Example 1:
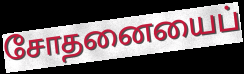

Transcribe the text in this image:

சோதனையைப்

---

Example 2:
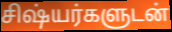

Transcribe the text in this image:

சிஷ்யர்களுடன்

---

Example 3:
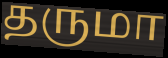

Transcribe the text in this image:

தருமா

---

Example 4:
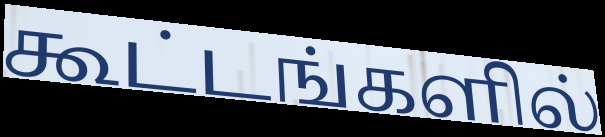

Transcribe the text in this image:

கூட்டங்களில்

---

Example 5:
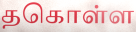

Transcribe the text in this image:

தகொள்ள